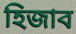
হিজাব